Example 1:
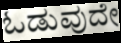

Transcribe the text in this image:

ಓಡುವುದೇ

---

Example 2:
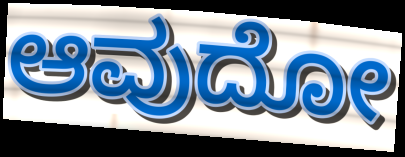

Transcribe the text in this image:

ಆವುದೋ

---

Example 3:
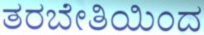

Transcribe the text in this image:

ತರಬೇತಿಯಿಂದ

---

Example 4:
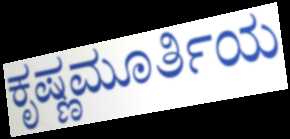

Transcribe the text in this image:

ಕೃಷ್ಣಮೂರ್ತಿಯ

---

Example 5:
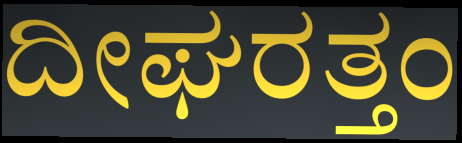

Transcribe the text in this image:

ದೀಘರತ್ತಂ